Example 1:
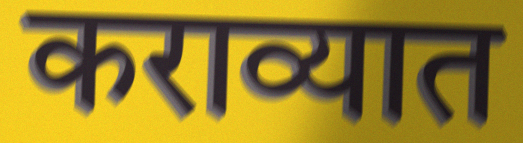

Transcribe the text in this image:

कराव्यात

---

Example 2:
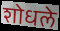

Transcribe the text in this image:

शोधले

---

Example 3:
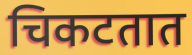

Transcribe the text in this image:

चिकटतात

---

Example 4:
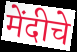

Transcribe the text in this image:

मेंदीचे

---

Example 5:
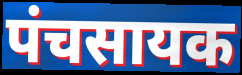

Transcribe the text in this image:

पंचसायक